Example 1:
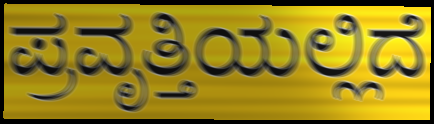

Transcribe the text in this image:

ಪ್ರವೃತ್ತಿಯಲ್ಲಿದೆ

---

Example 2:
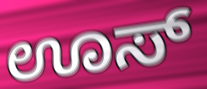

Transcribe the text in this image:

ಊಸ್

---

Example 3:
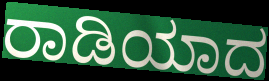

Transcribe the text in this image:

ರಾಡಿಯಾದ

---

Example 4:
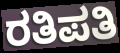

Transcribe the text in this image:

ರತಿಪತಿ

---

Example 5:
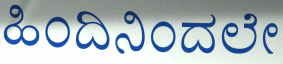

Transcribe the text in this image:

ಹಿಂದಿನಿಂದಲೇ